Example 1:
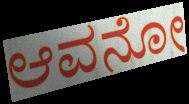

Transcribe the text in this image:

ಆವನೋ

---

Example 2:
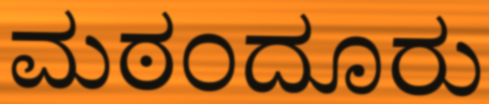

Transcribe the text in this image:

ಮಠಂದೂರು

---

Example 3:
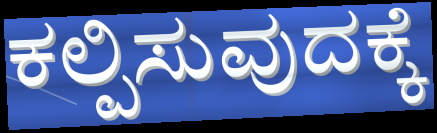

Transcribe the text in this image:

ಕಲ್ಪಿಸುವುದಕ್ಕೆ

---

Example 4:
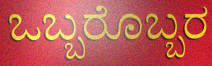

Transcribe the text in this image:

ಒಬ್ಬರೊಬ್ಬರ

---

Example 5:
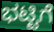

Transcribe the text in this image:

ಭಟ್ಟಿಗೆ